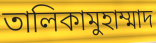
তালিকামুহাম্মাদ